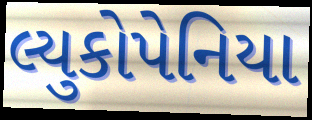
લ્યુકોપેનિયા